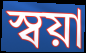
স্বয়া